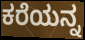
ಕರೆಯನ್ನ